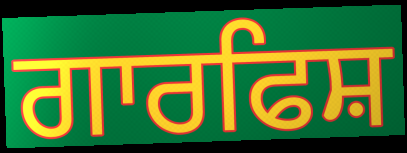
ਗਾਰਫਿਸ਼